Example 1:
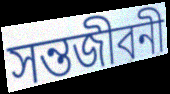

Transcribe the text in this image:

সন্তজীবনী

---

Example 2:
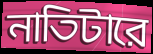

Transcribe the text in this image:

নাতিটারে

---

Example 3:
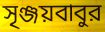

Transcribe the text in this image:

সৃঞ্জয়বাবুর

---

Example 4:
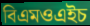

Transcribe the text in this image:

বিএমওএইচ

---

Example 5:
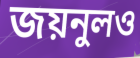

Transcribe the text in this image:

জয়নুলও